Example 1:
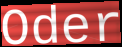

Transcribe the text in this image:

Oder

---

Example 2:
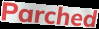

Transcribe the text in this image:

Parched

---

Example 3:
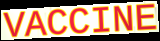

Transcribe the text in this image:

VACCINE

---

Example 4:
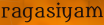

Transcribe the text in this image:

ragasiyam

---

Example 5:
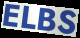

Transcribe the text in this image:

ELBS